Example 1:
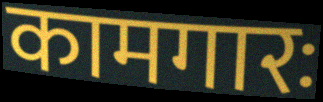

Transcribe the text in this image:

कामगारः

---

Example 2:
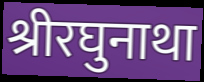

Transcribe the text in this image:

श्रीरघुनाथा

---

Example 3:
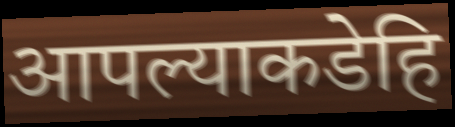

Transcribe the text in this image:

आपल्याकडेहि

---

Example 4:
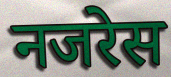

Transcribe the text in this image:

नजरेस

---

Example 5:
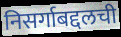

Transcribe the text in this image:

निसर्गाबद्दलची